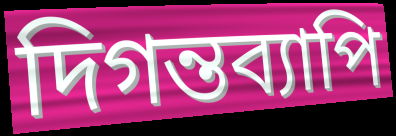
দিগন্তব্যাপি